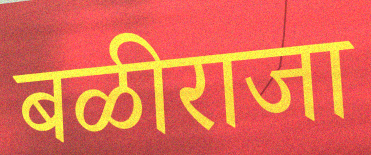
बळीराजा